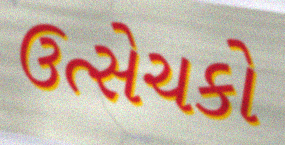
ઉત્સેચકો